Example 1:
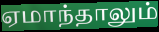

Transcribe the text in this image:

ஏமாந்தாலும்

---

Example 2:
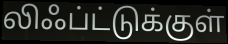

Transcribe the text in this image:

லிஃப்ட்டுக்குள்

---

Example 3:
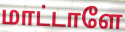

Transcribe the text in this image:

மாட்டாளே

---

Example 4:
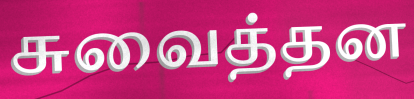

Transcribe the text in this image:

சுவைத்தன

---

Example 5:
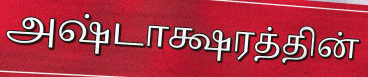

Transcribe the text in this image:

அஷ்டாக்ஷரத்தின்